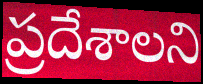
ప్రదేశాలని